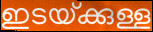
ഇടയ്‌ക്കുള്ള